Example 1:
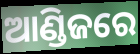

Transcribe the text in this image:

ଆଣ୍ଡିଜରେ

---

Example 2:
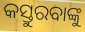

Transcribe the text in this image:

କସ୍ତୁରବାଙ୍କୁ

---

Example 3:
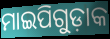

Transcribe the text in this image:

ମାଇପିଗୁଡ଼ାକ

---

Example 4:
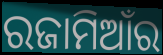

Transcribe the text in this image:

ରଜାମିଆଁର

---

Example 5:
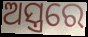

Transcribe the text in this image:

ଅସ୍ତ୍ରରେ